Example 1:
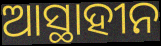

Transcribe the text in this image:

ଆସ୍ଥାହୀନ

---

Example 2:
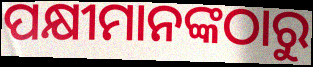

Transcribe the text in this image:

ପକ୍ଷୀମାନଙ୍କଠାରୁ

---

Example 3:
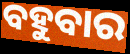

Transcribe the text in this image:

ବହୁବାର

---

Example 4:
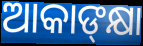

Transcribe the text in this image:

ଆକାଙ୍‌କ୍ଷା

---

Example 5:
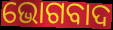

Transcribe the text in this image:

ଭୋଗବାଦ